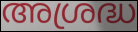
അശ്രദ്ധ